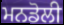
ਮਨਡੋਲੀ